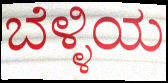
ಬೆಳ್ಳಿಯ